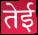
तेई